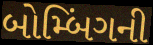
બોમ્બિંગની